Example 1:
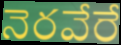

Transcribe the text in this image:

నెరవేరే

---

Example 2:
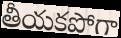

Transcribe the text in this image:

తీయకపోగా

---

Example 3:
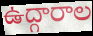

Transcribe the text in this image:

ఉద్గారాల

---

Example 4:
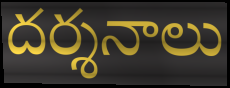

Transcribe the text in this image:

దర్శనాలు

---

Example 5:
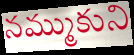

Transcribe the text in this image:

నమ్ముకుని